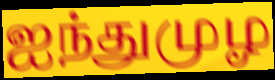
ஐந்துமுழ